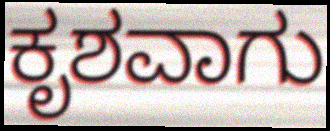
ಕೃಶವಾಗು